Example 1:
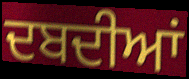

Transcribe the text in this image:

ਦਬਦੀਆਂ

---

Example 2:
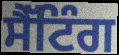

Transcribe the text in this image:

ਸੈੱਟਿੰਗ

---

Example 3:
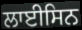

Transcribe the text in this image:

ਲਾਈਸਿਨ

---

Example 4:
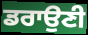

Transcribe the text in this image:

ਡਰਾਉਣੀ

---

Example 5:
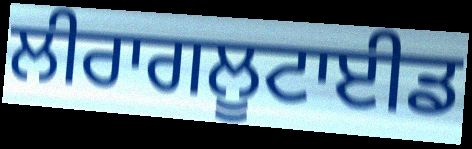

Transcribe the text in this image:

ਲੀਰਾਗਲੂਟਾਈਡ